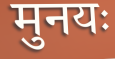
मुनयः